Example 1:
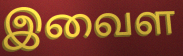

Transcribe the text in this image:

இவைள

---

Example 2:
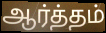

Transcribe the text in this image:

ஆர்த்தம்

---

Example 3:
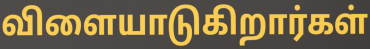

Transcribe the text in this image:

விளையாடுகிறார்கள்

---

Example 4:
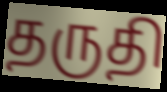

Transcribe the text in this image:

தருதி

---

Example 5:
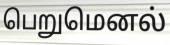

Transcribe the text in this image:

பெறுமெனல்